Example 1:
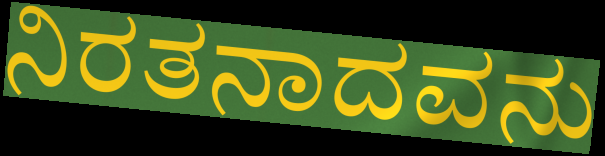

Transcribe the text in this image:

ನಿರತನಾದವನು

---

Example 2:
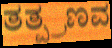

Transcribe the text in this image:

ತತ್ಪ್ರಣವ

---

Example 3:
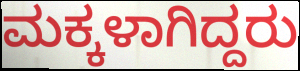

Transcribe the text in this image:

ಮಕ್ಕಳಾಗಿದ್ದರು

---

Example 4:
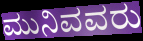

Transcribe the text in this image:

ಮುನಿವವರು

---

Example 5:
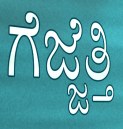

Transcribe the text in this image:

ಗೆಜ್ಜೆತ್ತಿ